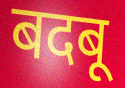
बदबू